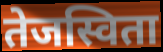
तेजस्विता